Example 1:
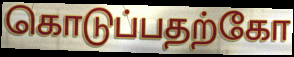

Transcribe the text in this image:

கொடுப்பதற்கோ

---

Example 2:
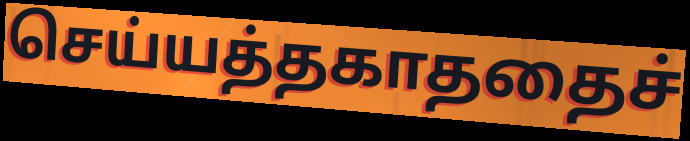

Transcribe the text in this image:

செய்யத்தகாததைச்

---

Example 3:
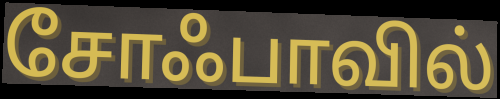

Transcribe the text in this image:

சோஃபாவில்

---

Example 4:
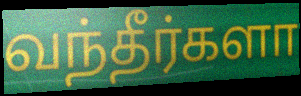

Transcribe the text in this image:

வந்தீர்களா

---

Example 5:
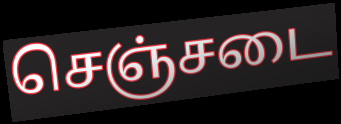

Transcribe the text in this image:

செஞ்சடை